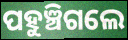
ପହୁଞ୍ଚିଗଲେ